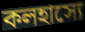
কলহাস্যে